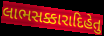
લાભસક્કારાદિહેતુ